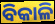
ବିକାଳି